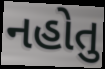
નહોતુ